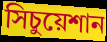
সিচুয়েশান